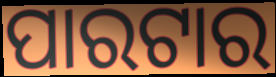
ପାରଟାର